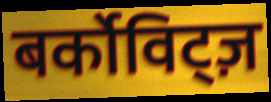
बर्कोविट्ज़